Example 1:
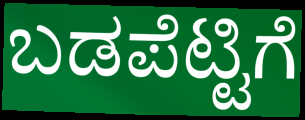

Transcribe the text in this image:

ಬಡಪೆಟ್ಟಿಗೆ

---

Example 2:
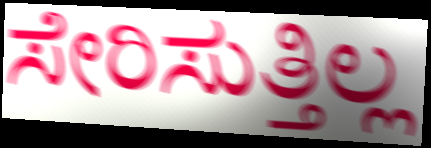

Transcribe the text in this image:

ಸೇರಿಸುತ್ತಿಲ್ಲ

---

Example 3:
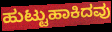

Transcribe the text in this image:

ಹುಟ್ಟುಹಾಕಿದವು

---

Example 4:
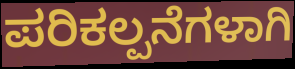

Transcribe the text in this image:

ಪರಿಕಲ್ಪನೆಗಳಾಗಿ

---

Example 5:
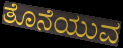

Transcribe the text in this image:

ತೊನೆಯುವ